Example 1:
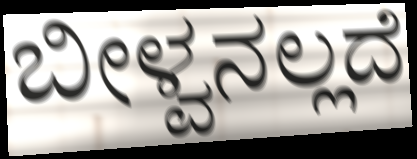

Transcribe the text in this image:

ಬೀಳ್ವನಲ್ಲದೆ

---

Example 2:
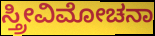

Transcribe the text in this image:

ಸ್ತ್ರೀವಿಮೋಚನಾ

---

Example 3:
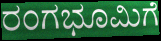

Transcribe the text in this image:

ರಂಗಭೂಮಿಗೆ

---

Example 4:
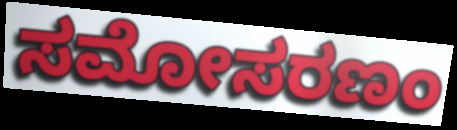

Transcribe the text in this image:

ಸಮೋಸರಣಂ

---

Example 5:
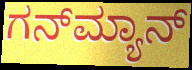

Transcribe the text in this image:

ಗನ್‌ಮ್ಯಾನ್